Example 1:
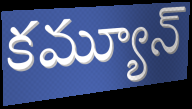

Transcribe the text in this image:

కమ్యూన్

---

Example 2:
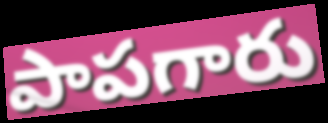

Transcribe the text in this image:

పాపగారు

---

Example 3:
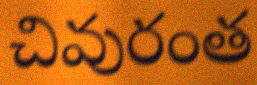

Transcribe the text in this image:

చివురంత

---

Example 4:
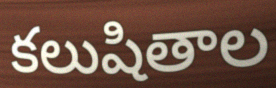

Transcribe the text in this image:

కలుషితాల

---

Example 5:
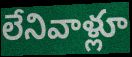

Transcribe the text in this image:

లేనివాళ్లూ